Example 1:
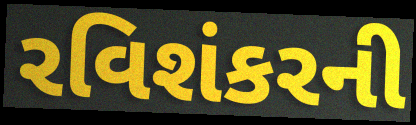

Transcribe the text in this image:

રવિશંકરની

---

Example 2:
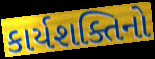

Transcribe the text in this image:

કાર્યશક્તિનો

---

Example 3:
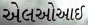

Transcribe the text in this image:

એલઓઆઈ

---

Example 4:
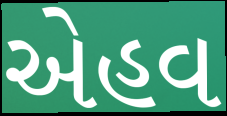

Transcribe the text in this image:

એહવ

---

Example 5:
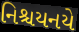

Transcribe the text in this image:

નિશ્ચયનયે